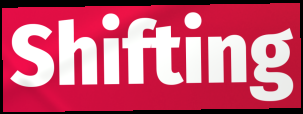
Shifting